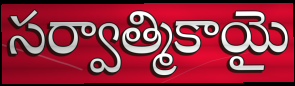
సర్వాత్మికాయై